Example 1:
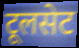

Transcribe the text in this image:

टूलसेट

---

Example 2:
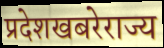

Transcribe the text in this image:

प्रदेशखबरेराज्य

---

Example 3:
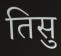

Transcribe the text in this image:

तिसु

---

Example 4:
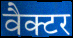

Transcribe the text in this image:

वैक्टर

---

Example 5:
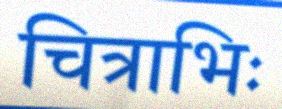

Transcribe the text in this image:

चित्राभिः